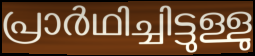
പ്രാർഥിച്ചിട്ടുള്ളു